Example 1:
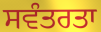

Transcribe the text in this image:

ਸਵੰਤਰਤਾ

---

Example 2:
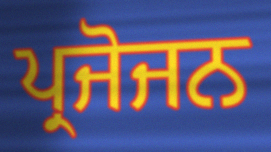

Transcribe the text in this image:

ਪ੍ਰਜੋਜਨ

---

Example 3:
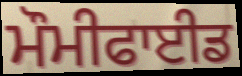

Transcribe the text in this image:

ਮੌਮੀਫਾਈਡ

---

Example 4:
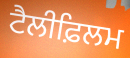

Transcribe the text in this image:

ਟੈਲੀਫ਼ਿਲਮ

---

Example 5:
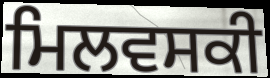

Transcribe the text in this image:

ਮਿਲਵਸਕੀ